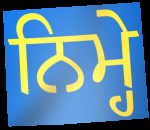
ਨਿਮ੍ਹੇ